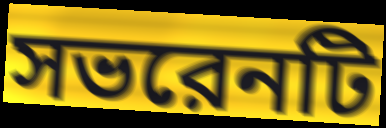
সভরেনটি